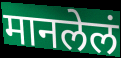
मानलेलं